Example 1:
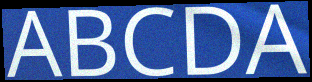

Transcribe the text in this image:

ABCDA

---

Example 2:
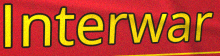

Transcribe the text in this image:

Interwar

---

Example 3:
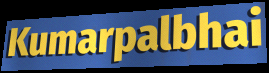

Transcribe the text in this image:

Kumarpalbhai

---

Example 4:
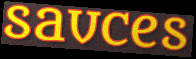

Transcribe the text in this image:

sauces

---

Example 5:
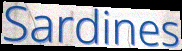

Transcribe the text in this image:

Sardines